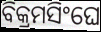
ବିକ୍ରମସିଂଘେ